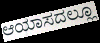
ಆಯಾಸದಲ್ಲೂ